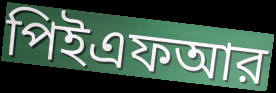
পিইএফআর